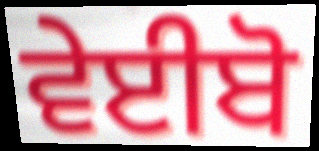
ਵੇਈਬੋ